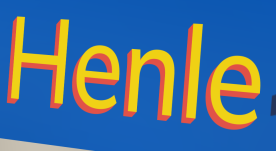
Henle